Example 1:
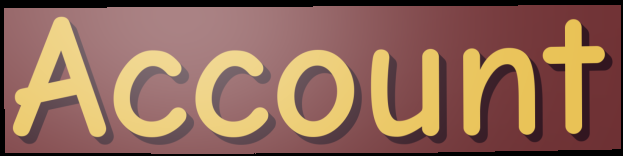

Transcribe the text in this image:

Account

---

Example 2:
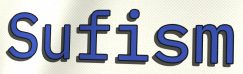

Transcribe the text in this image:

Sufism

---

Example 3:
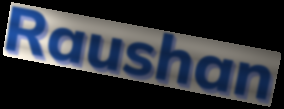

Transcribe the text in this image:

Raushan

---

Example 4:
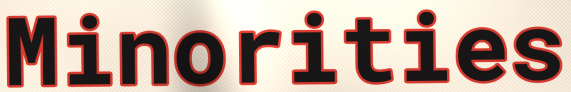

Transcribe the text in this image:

Minorities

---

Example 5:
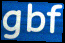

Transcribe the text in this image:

gbf